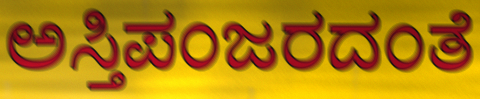
ಅಸ್ತಿಪಂಜರದಂತೆ